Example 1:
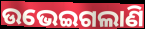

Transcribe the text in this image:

ଉଭେଇଗଲାଣି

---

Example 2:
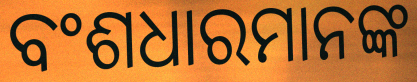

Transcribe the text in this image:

ବଂଶଧାରମାନଙ୍କ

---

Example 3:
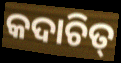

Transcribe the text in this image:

କଦାଚିତ୍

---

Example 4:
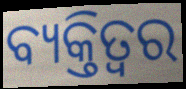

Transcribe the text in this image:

ବ୍ୟକ୍ତିତ୍ବର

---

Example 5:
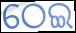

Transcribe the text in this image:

ଠେଇ